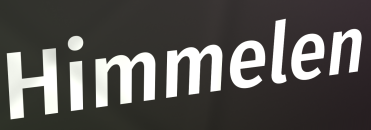
Himmelen